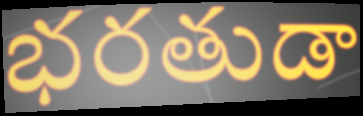
భరతుడా